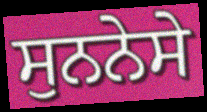
ਸੁਨਨੇਸੇ